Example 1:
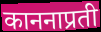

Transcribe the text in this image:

काननाप्रती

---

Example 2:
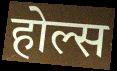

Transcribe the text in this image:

होल्स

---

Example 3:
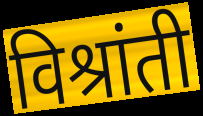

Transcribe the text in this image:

विश्रांती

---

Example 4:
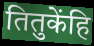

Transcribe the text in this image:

तितुकेंहि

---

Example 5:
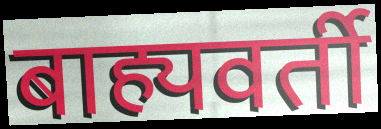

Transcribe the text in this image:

बाह्यवर्ती